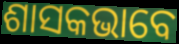
ଶାସକଭାବେ